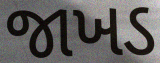
જાખડ